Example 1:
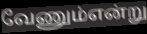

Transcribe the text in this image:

வேணும்என்று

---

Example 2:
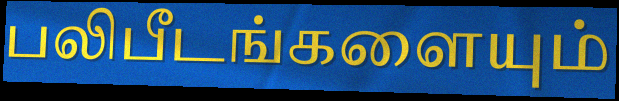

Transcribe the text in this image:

பலிபீடங்களையும்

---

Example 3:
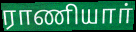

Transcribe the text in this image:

ராணியார்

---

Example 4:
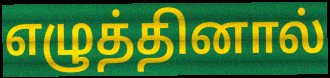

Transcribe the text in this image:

எழுத்தினால்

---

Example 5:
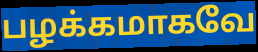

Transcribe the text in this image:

பழக்கமாகவே